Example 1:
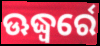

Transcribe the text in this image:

ଊଦ୍ଧ୍ୱର୍ରେ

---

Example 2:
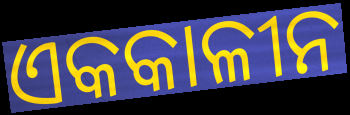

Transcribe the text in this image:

ଏକକାଳୀନ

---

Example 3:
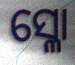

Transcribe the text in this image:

ସ୍ଳୋ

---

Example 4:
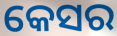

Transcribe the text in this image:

କେସର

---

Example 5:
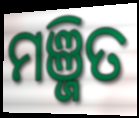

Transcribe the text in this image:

ମଞ୍ଜିତ